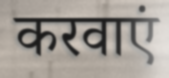
करवाएं